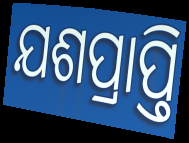
ଯଶପ୍ରାପ୍ତି